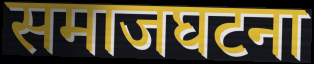
समाजघटना